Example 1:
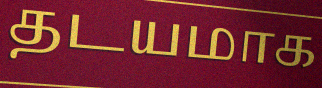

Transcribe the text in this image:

தடயமாக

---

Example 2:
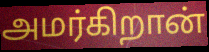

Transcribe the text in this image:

அமர்கிறான்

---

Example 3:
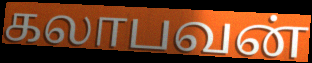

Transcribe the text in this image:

கலாபவன்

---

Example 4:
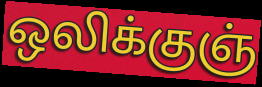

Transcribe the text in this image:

ஒலிக்குஞ்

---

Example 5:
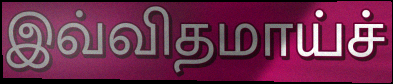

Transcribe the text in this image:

இவ்விதமாய்ச்